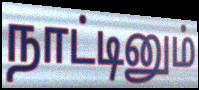
நாட்டினும்